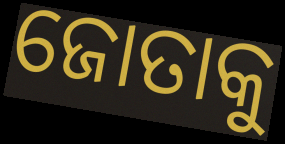
ଜୋତାକୁ